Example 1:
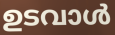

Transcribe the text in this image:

ഉടവാൾ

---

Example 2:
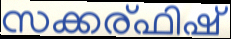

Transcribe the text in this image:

സക്കര്ഫിഷ്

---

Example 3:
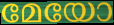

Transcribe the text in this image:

മേയോ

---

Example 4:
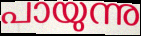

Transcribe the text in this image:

പായുന്നു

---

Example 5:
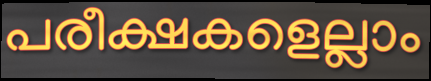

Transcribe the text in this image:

പരീക്ഷകളെല്ലാം